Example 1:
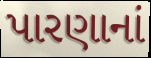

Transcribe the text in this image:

પારણાનાં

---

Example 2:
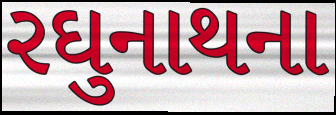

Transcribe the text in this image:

રઘુનાથના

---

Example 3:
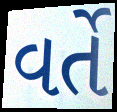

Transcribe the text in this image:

વર્તે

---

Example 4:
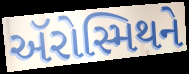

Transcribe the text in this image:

ઍરોસ્મિથને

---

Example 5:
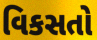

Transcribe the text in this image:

વિકસતો